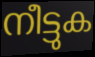
നീട്ടുക